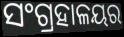
ସଂଗ୍ରହାଳୟର